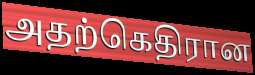
அதற்கெதிரான